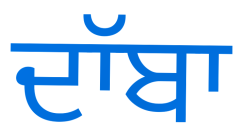
ਦਾੱਬਾ